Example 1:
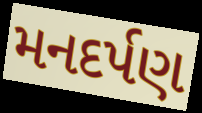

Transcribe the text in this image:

મનદર્પણ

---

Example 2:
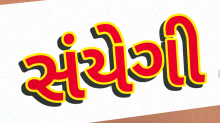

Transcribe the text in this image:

સંયેગી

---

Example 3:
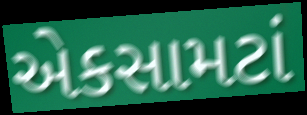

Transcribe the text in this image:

એકસામટાં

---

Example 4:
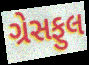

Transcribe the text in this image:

ગ્રેસફુલ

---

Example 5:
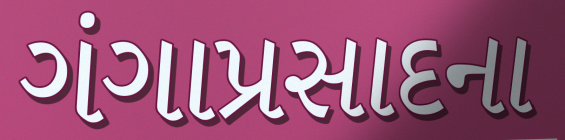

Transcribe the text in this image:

ગંગાપ્રસાદના